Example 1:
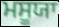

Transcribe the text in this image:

ਮਸੂਯਾ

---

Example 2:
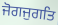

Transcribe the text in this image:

ਜੋਗਜੁਗਤਿ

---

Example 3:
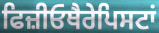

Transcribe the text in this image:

ਫਿਜ਼ੀਓਥੈਰੇਪਿਸਟਾਂ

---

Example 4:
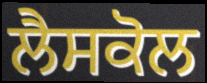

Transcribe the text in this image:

ਲੈਸਕੋਲ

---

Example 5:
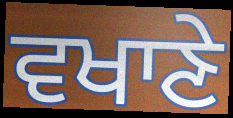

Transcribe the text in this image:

ਵਖਾਣੇ